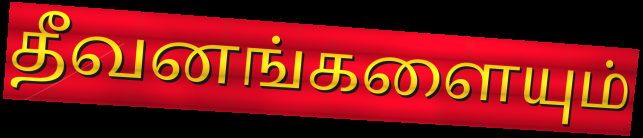
தீவனங்களையும்